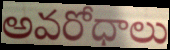
అవరోధాలు